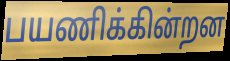
பயணிக்கின்றன